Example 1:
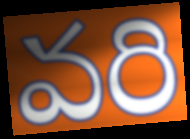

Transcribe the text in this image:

వరి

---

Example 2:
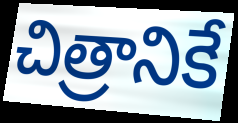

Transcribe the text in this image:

చిత్రానికే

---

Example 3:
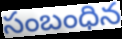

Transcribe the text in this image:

సంబంధిన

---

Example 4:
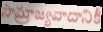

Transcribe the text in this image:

సామ్రాజ్యవాదానికీ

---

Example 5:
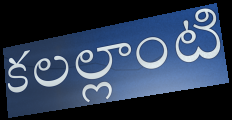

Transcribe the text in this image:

కలల్లాంటి